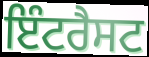
ਇੰਟਰੈਸਟ